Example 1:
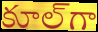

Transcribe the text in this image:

కూల్‌గా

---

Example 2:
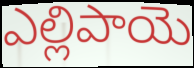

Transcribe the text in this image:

ఎల్లిపాయె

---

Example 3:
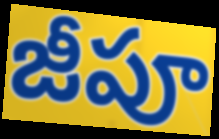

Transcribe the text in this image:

జీపూ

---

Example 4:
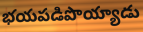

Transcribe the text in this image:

భయపడిపొయ్యాడు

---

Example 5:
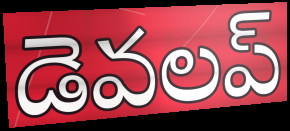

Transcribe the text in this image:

డెవలప్